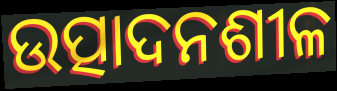
ଉତ୍ପାଦନଶୀଳ